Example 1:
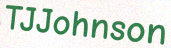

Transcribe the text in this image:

TJJohnson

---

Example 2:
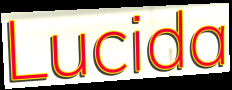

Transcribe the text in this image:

Lucida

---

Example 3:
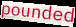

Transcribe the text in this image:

pounded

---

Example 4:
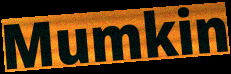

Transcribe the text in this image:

Mumkin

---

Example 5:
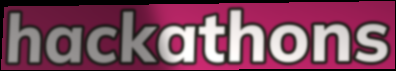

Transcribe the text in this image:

hackathons